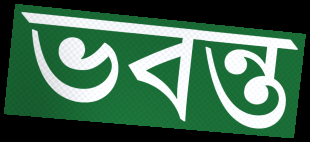
ভবন্ত